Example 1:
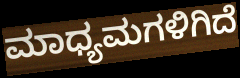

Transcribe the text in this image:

ಮಾಧ್ಯಮಗಳಿಗಿದೆ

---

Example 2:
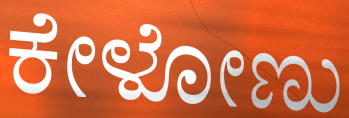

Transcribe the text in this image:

ಕೇಳೋಣು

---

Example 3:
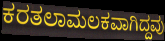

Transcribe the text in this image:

ಕರತಲಾಮಲಕವಾಗಿದ್ದವು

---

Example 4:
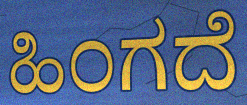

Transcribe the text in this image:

ಹಿಂಗದೆ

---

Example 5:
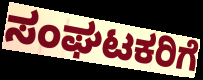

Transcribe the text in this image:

ಸಂಘಟಕರಿಗೆ